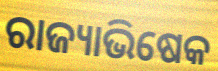
ରାଜ୍ୟାଭିଷେକ